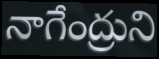
నాగేంద్రుని